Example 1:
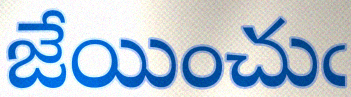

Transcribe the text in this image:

జేయించుఁ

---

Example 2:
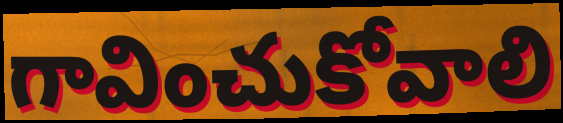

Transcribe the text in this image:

గావించుకోవాలి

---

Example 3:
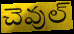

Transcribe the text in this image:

చెవుల్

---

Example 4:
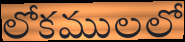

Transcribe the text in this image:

లోకములలో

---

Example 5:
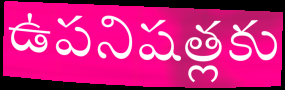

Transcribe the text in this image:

ఉపనిషత్లకు